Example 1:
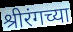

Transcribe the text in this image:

श्रीरंगच्या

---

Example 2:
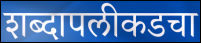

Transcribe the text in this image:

शब्दापलीकडचा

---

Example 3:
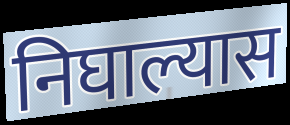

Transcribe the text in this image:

निघाल्यास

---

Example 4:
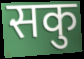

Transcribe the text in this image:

सकु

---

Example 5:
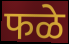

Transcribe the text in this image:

फळे